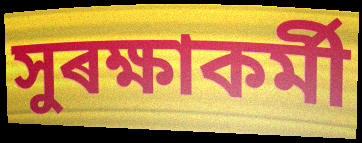
সুৰক্ষাকৰ্মী